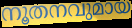
നൂതനവുമായ